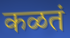
कळतं